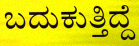
ಬದುಕುತ್ತಿದ್ದೆ